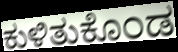
ಕುಳಿತುಕೊಂಡ